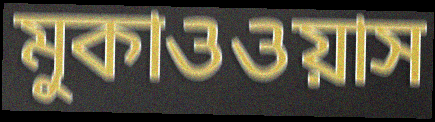
মুকাওওয়াস